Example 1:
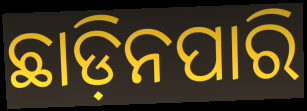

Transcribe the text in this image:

ଛାଡ଼ିନପାରି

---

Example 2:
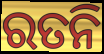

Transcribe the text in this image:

ରତନି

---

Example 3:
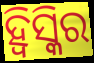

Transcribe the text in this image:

ହ୍ୱିସ୍କିର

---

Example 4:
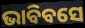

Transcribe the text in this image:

ଭାବିବସେ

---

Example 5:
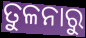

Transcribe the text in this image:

ତୁଳନାରୁ